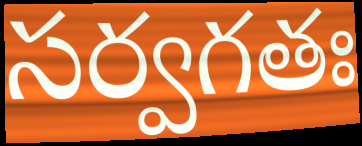
సర్వగతః